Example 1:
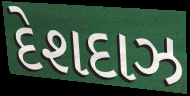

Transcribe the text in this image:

દેશદાઝ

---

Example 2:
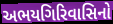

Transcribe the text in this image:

અભયગિરિવાસિનો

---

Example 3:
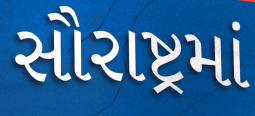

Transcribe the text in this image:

સૌરાષ્ટ્રમાં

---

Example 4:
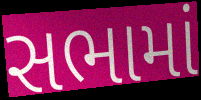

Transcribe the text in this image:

સભામાં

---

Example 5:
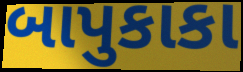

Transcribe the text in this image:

બાપુકાકા